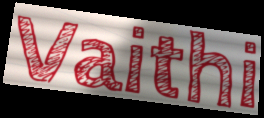
Vaithi